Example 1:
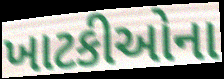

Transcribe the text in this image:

ખાટકીઓના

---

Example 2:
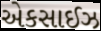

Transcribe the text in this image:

એકસાઈઝ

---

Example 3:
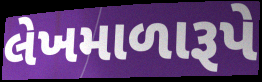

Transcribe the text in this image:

લેખમાળારૂપે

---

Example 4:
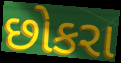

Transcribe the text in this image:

છોકરા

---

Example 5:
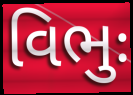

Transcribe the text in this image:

વિભુઃ